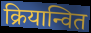
क्रियान्वित